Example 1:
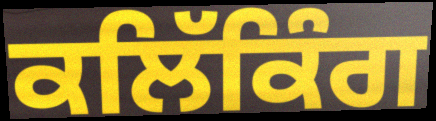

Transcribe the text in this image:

ਕਲਿੱਕਿੰਗ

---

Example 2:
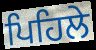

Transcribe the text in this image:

ਪਿਹਿਲੇ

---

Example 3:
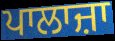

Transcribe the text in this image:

ਪਾਲਾਜ਼ਾ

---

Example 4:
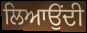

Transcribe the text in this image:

ਲਿਆਉਂਦੀ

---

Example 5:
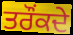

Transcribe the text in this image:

ਤਰੌਂਕਦੇ